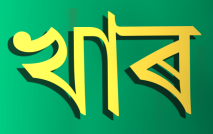
খাৰ